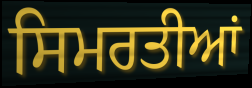
ਸਿਮਰਤੀਆਂ